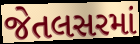
જેતલસરમાં